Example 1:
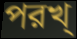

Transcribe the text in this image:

পরখ্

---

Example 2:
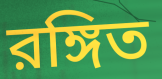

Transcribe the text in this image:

রঙ্গিত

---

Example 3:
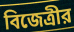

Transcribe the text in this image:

বিজেত্রীর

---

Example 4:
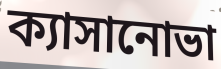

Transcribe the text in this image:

ক্যাসানোভা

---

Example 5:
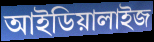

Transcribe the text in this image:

আইডিয়ালাইজ